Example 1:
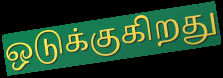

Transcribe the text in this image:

ஒடுக்குகிறது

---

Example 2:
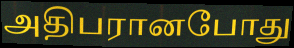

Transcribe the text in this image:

அதிபரானபோது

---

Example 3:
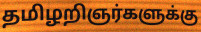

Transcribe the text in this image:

தமிழறிஞர்களுக்கு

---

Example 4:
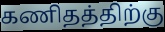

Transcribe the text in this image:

கணிதத்திற்கு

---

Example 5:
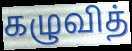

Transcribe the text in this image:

கழுவித்